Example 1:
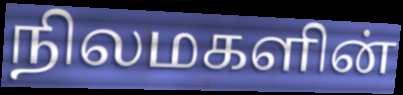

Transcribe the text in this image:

நிலமகளின்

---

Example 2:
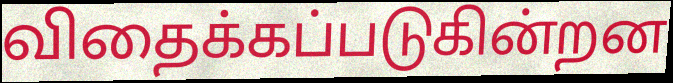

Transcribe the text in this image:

விதைக்கப்படுகின்றன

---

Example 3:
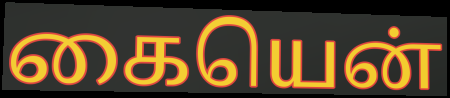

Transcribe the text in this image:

கையென்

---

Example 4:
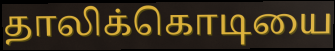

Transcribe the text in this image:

தாலிக்கொடியை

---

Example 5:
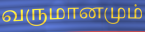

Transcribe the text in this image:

வருமானமும்